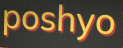
poshyo